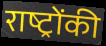
राष्ट्रोंकी